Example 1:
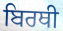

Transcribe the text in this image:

ਬਿਰਥੀ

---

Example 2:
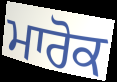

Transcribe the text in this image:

ਮਾਰੋਕ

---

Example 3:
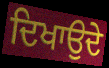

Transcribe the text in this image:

ਦਿਖਾਉਦੇ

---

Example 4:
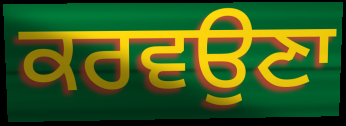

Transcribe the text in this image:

ਕਰਵਉਣਾ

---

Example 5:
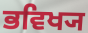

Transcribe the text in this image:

ਭਵਿਖ੍ਯ